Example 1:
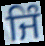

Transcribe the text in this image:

ਜਿੰ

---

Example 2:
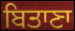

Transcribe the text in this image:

ਬਿਤਾਣਾ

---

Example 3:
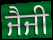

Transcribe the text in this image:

ਜੈਜੀ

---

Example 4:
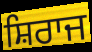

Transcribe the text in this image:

ਸ਼ਿਰਾਜ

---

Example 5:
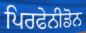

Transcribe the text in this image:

ਪਿਰਫੇਨੀਡੋਨ